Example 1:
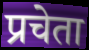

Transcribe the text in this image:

प्रचेता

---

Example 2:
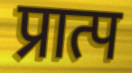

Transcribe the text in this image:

प्रात्प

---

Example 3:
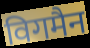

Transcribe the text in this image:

विगमैन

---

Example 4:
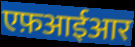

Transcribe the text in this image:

एफ़आईआर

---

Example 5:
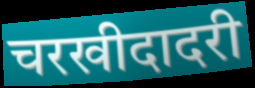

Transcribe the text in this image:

चरखीदादरी